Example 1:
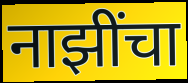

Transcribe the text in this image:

नाझींचा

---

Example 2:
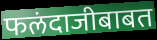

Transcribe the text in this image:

फलंदाजीबाबत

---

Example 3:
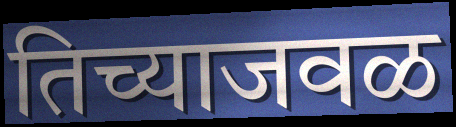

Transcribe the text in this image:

तिच्याजवळ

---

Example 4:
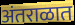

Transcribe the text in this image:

अंतराळात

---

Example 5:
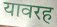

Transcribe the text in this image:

यावरह